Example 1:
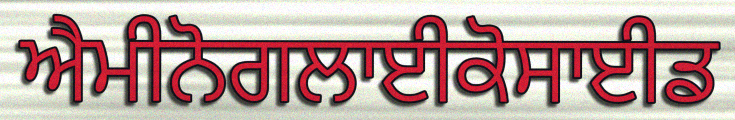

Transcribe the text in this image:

ਐਮੀਨੋਗਲਾਈਕੋਸਾਈਡ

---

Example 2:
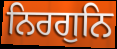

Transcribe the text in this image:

ਨਿਰਗੁਨਿ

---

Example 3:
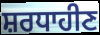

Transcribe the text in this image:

ਸ਼ਰਧਾਹੀਣ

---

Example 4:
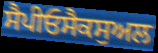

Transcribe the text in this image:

ਸੈਪੀਓਸੈਕਸੁਅਲ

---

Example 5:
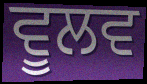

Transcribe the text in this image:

ਵੂਲਵ